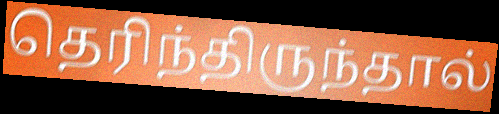
தெரிந்திருந்தால்